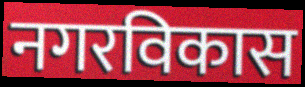
नगरविकास